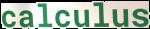
calculus